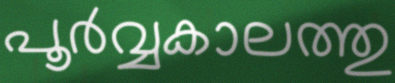
പൂർവ്വകാലത്തു